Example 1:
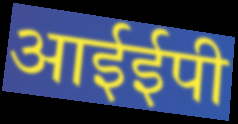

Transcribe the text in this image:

आईईपी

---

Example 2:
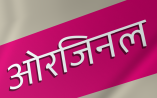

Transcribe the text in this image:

ओरजिनल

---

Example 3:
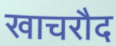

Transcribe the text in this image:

खाचरौद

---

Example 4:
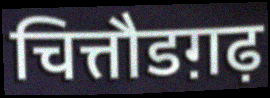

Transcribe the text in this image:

चित्तौडग़ढ़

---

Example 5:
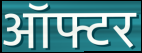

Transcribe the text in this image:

ऑफ्टर